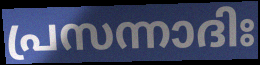
പ്രസന്നാദിഃ